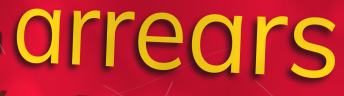
arrears